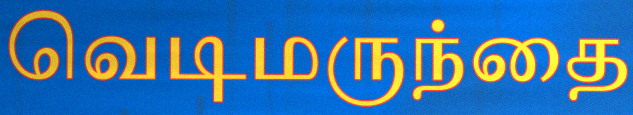
வெடிமருந்தை